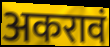
अकरावं